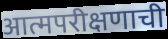
आत्मपरीक्षणाची